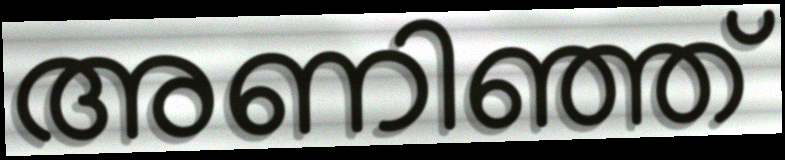
അണിഞ്ഞ്